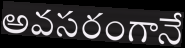
అవసరంగానే